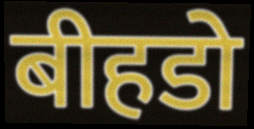
बीहडो